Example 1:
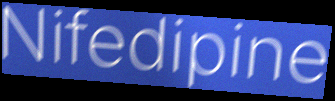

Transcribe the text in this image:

Nifedipine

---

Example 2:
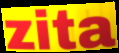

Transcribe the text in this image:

zita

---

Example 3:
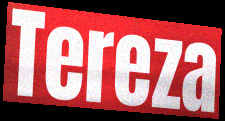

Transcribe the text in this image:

Tereza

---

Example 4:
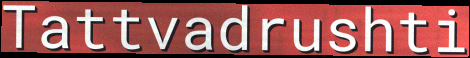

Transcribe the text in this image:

Tattvadrushti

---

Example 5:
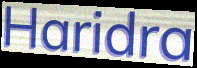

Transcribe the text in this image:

Haridra